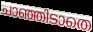
ചാഞ്ഞിടാതെ